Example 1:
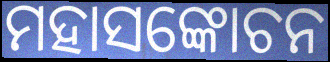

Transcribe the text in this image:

ମହାସଙ୍କୋଚନ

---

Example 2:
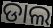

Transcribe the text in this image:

ଡାଲ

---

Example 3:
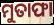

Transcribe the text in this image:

ମୁତାଫା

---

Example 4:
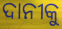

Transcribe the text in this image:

ଦାନୀକୁ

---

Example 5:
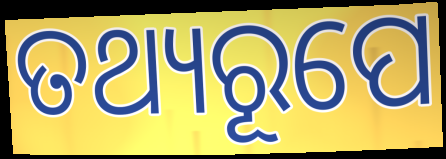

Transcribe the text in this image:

ତଥ୍ୟରୂପେ